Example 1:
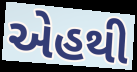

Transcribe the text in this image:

એહથી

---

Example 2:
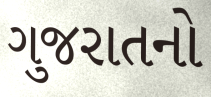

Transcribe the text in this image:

ગુજરાતનો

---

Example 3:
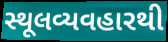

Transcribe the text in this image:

સ્થૂલવ્યવહારથી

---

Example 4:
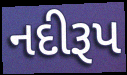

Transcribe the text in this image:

નદીરૂપ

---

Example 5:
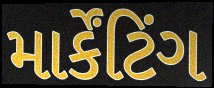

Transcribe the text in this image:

માર્કેંટિંગ